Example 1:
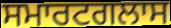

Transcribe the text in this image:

ਸਮਾਰਟਗਲਾਸ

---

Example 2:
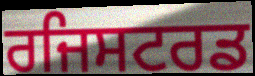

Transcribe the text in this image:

ਰਜਿਸਟਰਡ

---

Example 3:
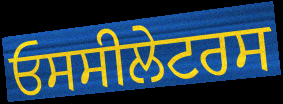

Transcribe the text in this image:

ਓਸਸੀਲੇਟਰਸ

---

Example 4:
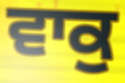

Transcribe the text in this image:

ਵਾਕੁ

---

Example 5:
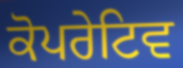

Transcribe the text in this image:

ਕੋਪਰੇਟਿਵ